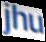
jhu